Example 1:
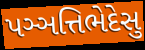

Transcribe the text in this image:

પઞ્ઞત્તિભેદેસુ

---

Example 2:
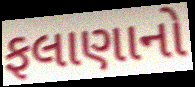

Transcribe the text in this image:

ફલાણાનો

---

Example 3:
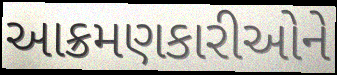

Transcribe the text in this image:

આક્રમણકારીઓને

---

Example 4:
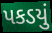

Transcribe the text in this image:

પકડયું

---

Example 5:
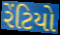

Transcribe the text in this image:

રેંટિયો